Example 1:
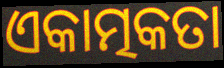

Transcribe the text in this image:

ଏକାତ୍ମକତା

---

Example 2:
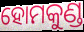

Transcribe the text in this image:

ହୋମକୁଣ୍ଡ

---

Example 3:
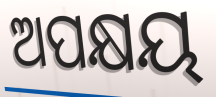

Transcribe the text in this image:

ଅପକ୍ଷୟ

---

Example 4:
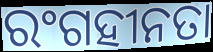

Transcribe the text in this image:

ରଂଗହୀନତା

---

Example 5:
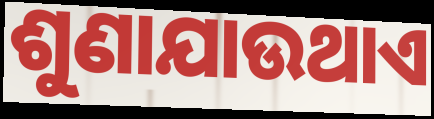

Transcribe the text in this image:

ଶୁଣାଯାଉଥାଏ